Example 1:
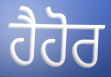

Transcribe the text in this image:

ਹੈਹੋਰ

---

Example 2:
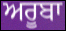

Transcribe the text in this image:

ਅਰੂਬਾ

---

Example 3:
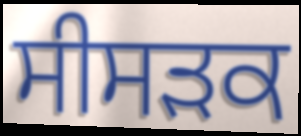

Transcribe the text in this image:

ਸੀਸੜਕ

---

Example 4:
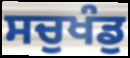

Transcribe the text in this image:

ਸਚੁਖੰਡੁ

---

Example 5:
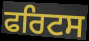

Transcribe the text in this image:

ਫਰਿਟਸ